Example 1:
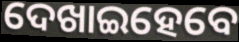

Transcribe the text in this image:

ଦେଖାଇହେବେ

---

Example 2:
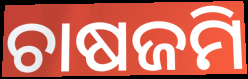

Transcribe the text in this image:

ଚାଷଜମି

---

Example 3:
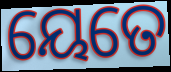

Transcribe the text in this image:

ୟେତେ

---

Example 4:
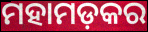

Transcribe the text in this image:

ମହାମଡ଼କର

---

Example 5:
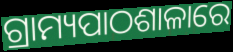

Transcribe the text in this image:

ଗ୍ରାମ୍ୟପାଠଶାଳାରେ